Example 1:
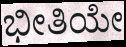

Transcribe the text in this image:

ಭೀತಿಯೇ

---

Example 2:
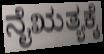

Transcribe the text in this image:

ನೈಋತ್ಯಕ್ಕೆ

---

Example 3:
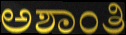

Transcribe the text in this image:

ಅಶಾಂತಿ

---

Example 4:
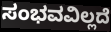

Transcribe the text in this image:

ಸಂಭವವಿಲ್ಲದೆ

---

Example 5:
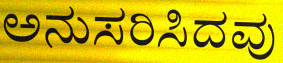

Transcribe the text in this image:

ಅನುಸರಿಸಿದವು